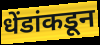
धेंडांकडून